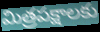
మిత్రపక్షాలకు